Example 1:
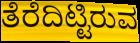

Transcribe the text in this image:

ತೆರೆದಿಟ್ಟಿರುವ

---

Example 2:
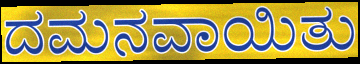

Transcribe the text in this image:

ದಮನವಾಯಿತು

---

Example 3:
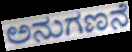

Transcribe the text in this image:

ಅನುಗಣನೆ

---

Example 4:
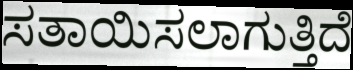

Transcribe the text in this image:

ಸತಾಯಿಸಲಾಗುತ್ತಿದೆ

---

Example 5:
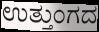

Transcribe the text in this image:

ಉತ್ತುಂಗದ